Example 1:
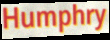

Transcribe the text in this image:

Humphry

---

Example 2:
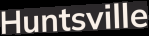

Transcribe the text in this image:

Huntsville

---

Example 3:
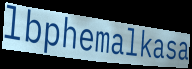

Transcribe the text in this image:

lbphemalkasa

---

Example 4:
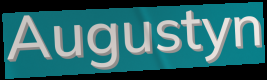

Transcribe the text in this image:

Augustyn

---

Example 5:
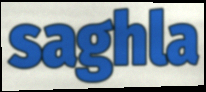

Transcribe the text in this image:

saghla